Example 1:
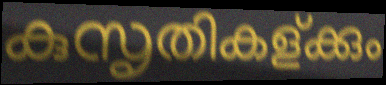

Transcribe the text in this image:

കുസൃതികള്ക്കും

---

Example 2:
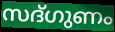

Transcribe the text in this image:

സദ്ഗുണം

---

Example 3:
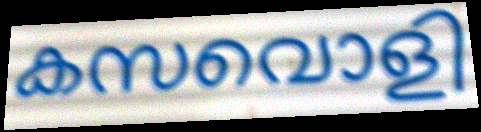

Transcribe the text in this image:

കസവൊളി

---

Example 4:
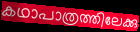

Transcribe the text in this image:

കഥാപാത്രത്തിലേക്കു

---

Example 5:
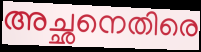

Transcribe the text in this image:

അച്ഛനെതിരെ